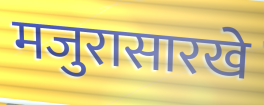
मजुरासारखे